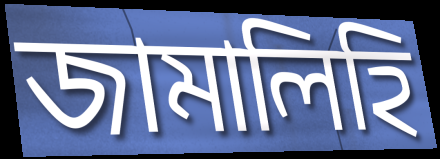
জামালিহি